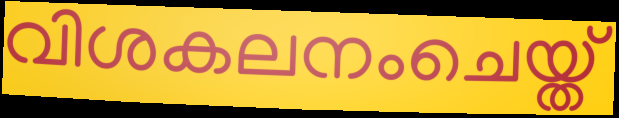
വിശകലനംചെയ്ത്